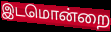
இடமொன்றை